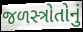
જળસ્ત્રોતોનું